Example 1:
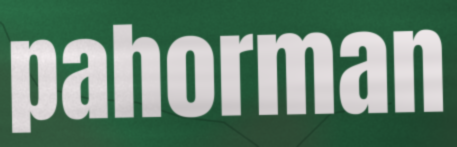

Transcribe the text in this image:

pahorman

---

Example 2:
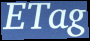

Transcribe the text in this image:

ETag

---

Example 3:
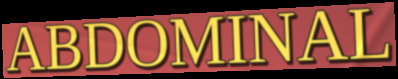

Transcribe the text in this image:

ABDOMINAL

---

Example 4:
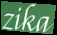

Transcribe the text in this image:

zika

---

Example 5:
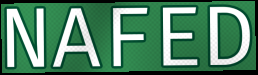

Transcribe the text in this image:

NAFED